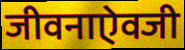
जीवनाऐवजी